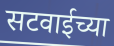
सटवाईच्या